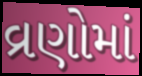
વ્રણોમાં